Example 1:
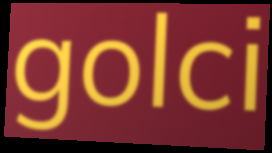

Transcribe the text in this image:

golci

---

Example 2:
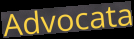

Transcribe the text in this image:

Advocata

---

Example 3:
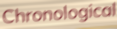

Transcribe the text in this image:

Chronological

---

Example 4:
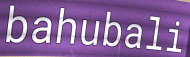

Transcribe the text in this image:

bahubali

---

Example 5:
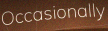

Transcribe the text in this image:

Occasionally